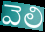
వెలి